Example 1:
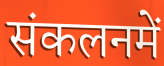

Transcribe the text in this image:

संकलनमें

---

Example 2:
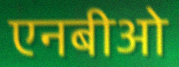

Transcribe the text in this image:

एनबीओ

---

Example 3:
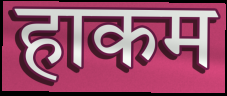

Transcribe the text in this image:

हाकम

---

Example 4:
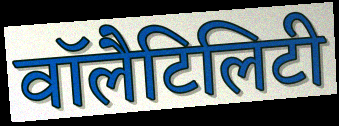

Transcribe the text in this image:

वॉलैटिलिटी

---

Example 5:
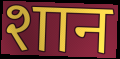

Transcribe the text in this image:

शान